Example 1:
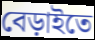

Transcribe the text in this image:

বেড়াইতে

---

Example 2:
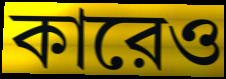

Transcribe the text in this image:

কারেও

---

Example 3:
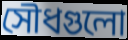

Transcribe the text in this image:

সৌধগুলো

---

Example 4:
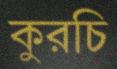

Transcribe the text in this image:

কুরচি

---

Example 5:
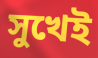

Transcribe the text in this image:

সুখেই